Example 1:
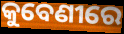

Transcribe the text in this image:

କୁବେଣୀରେ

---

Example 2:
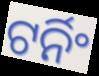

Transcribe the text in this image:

ଟର୍ନିଂ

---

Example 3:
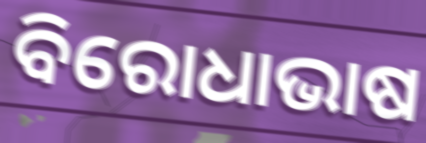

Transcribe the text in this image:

ବିରୋଧାଭାଷ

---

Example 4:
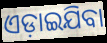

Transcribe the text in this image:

ଏଡ଼ାଇଯିବା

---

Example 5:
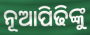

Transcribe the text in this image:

ନୂଆପିଢିଙ୍କୁ